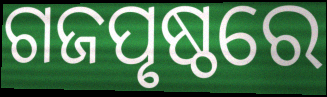
ଗଜପୃଷ୍ଠରେ